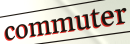
commuter